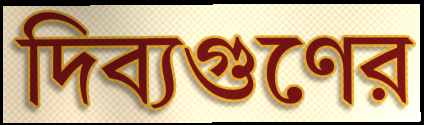
দিব্যগুণের